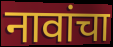
नावांचा